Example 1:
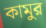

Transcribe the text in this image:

কামুর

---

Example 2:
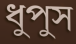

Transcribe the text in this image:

ধুপুস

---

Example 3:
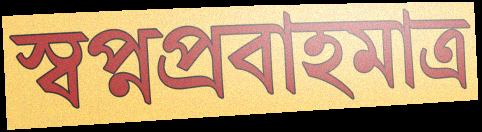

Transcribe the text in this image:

স্বপ্নপ্রবাহমাত্র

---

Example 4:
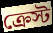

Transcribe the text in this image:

ক্রেস্ট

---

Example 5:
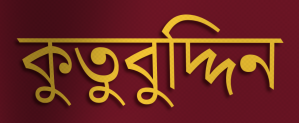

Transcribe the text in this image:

কুতুবুদ্দিন